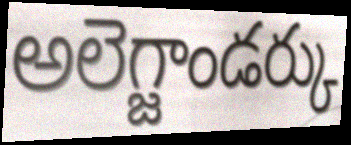
అలెగ్జాండర్కు